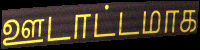
ஊடாட்டமாக